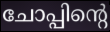
ചോപ്പിന്റെ